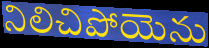
నిలిచిపోయెను